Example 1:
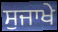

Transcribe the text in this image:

ਸੁਜਾਖੇ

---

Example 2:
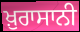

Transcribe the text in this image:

ਖ਼ੁਰਾਸਾਨੀ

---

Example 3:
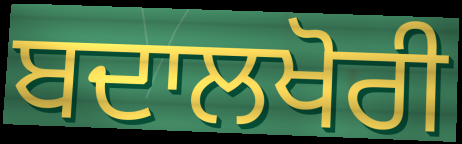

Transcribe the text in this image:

ਬਦਾਲਖੋਰੀ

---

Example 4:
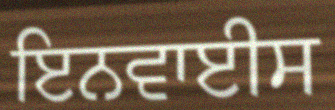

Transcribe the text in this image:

ਇਨਵਾਈਸ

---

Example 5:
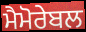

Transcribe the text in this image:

ਮੈਮੋਰੇਬਲ